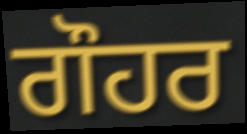
ਗੌਹਰ